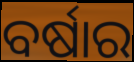
ବର୍ଷାର